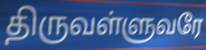
திருவள்ளுவரே